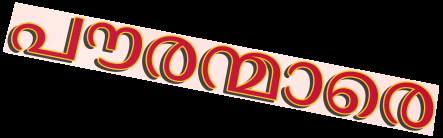
പൗരന്മാരെ